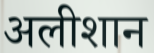
अलीशान